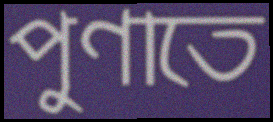
পুণাতে